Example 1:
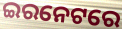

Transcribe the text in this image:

ଇରନେଟରେ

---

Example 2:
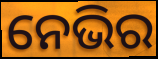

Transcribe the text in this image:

ନେଭିର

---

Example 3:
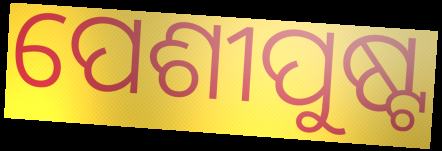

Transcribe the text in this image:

ପେଶୀପୁଷ୍ଟ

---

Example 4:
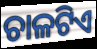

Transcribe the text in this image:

ଚାଳଟିଏ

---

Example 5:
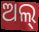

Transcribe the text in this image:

ଅଲ୍